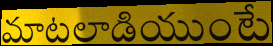
మాటలాడియుంటే